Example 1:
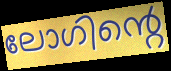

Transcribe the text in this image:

ലോഗിന്റെ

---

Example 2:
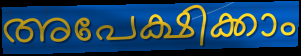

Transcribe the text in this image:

അപേക്ഷിക്കാം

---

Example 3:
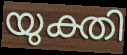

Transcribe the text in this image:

യുക്തി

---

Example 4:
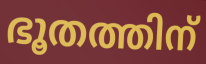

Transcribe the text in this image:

ഭൂതത്തിന്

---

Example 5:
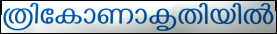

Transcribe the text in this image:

ത്രികോണാകൃതിയിൽ